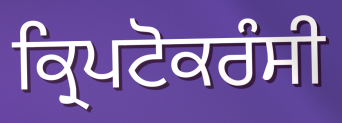
ਕ੍ਰਿਪਟੋਕਰੰਸੀ